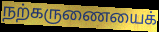
நற்கருணையைக்